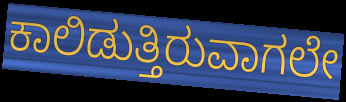
ಕಾಲಿಡುತ್ತಿರುವಾಗಲೇ